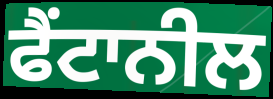
ਫੈਂਟਾਨੀਲ